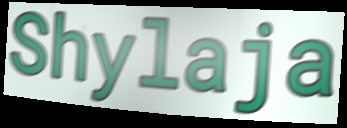
Shylaja